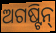
ଅଗଷ୍ଟିନ୍